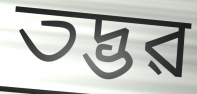
তদ্ভৱ